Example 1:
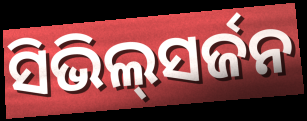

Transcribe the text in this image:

ସିଭିଲ୍‌ସର୍ଜନ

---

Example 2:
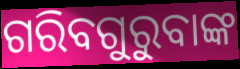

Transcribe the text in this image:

ଗରିବଗୁରୁବାଙ୍କ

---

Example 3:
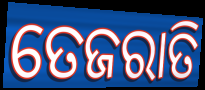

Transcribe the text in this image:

ତେଜରାତି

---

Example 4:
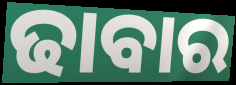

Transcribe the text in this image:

ଢାବାର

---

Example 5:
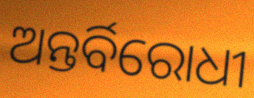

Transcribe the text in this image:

ଅନ୍ତର୍ବିରୋଧୀ